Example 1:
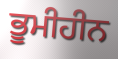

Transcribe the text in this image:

ਭੂਮੀਹੀਨ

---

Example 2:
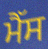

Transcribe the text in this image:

ਮੈੱਸ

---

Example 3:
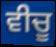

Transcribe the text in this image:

ਵੀਚੂ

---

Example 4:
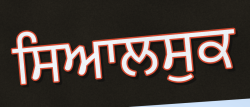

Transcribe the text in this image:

ਸਿਆਲਸੁਕ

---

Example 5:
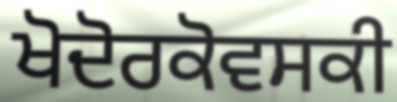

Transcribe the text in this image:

ਖੋਦੋਰਕੋਵਸਕੀ